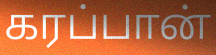
கரப்பான்